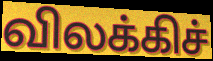
விலக்கிச்